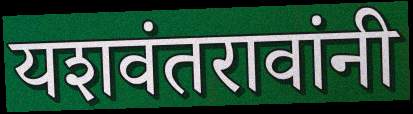
यशवंतरावांनी